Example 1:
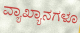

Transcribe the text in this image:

ವ್ಯಾಖ್ಯಾನಗಳೂ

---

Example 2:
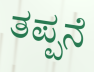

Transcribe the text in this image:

ತಪ್ಪನೆ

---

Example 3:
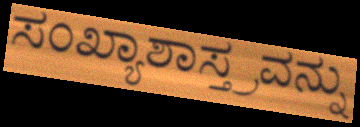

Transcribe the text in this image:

ಸಂಖ್ಯಾಶಾಸ್ತ್ರವನ್ನು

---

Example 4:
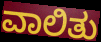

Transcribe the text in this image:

ವಾಲಿತು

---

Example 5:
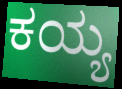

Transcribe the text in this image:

ಕಯ್ಯ